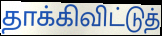
தாக்கிவிட்டுத்